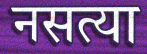
नसत्या